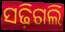
ସଢ଼ିଗଲି